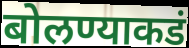
बोलण्याकडं